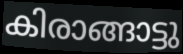
കിരാങ്ങാട്ടു